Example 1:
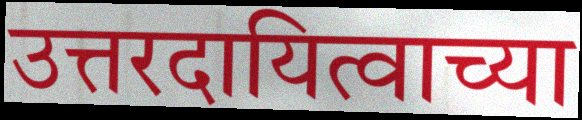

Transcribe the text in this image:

उत्तरदायित्वाच्या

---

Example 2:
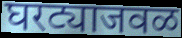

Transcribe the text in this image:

घरट्याजवळ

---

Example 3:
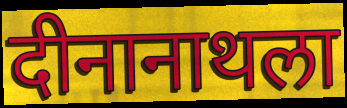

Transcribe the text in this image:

दीनानाथला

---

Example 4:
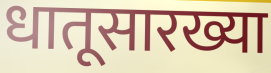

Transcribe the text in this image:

धातूसारख्या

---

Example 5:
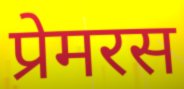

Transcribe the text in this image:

प्रेमरस